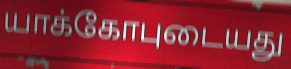
யாக்கோபுடையது